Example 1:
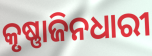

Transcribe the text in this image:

କୃଷ୍ଣାଜିନଧାରୀ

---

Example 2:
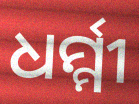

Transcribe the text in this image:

ଧର୍ମ୍ମୀ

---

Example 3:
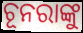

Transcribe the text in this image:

ଚୂନରାଙ୍କୁ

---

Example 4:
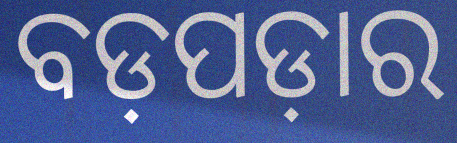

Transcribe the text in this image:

ବଡ଼ପଡ଼ାର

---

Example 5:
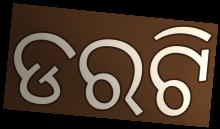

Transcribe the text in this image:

ଡରଟି